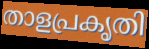
താളപ്രകൃതി